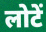
लोटें